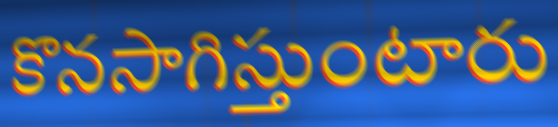
కొనసాగిస్తుంటారు